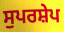
ਸੁਪਰਸ਼ੇਪ